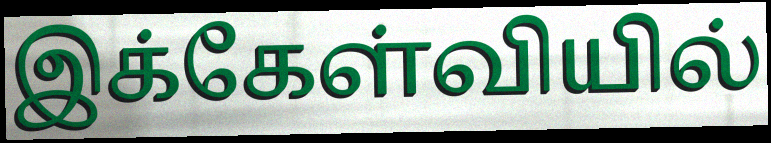
இக்கேள்வியில்